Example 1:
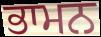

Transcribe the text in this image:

ਭਾਮਨ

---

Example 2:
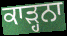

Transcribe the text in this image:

ਕਾੜ੍ਹਨਾ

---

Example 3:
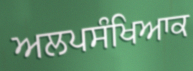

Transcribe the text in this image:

ਅਲਪਸੰਖਿਆਕ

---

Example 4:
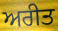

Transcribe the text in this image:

ਅਰੀਤ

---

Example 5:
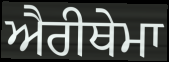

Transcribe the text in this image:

ਐਰੀਥੇਮਾ